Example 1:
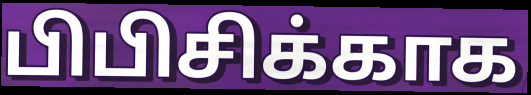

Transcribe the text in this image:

பிபிசிக்காக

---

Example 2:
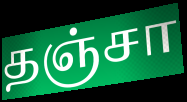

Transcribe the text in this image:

தஞ்சா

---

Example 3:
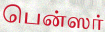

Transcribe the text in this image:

பென்ஸர்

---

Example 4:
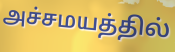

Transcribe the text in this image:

அச்சமயத்தில்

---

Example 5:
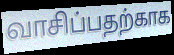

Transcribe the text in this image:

வாசிப்பதற்காக